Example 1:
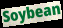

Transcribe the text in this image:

Soybean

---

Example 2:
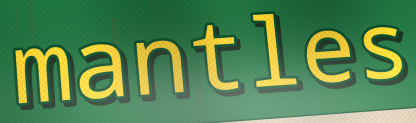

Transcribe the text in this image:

mantles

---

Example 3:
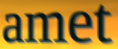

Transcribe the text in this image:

amet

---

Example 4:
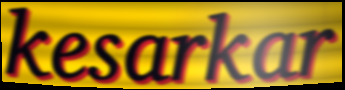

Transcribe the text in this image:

kesarkar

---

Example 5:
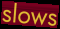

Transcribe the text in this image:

slows